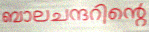
ബാലചന്ദറിന്റെ